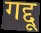
गद्दू